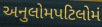
અનુલોમપટિલોમં